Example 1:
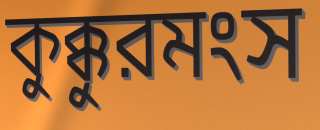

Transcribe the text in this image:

কুক্কুরমংস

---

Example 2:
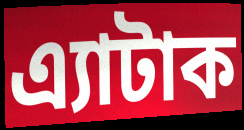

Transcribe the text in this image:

এ্যাটাক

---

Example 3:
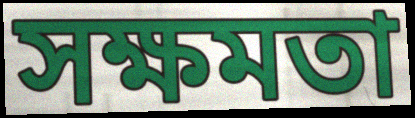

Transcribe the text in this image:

সক্ষমতা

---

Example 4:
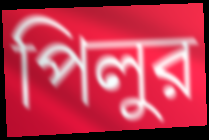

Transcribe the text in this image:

পিলুর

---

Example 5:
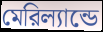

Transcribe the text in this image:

মেরিল্যান্ডে